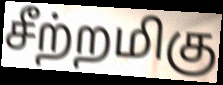
சீற்றமிகு